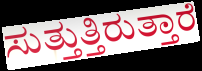
ಸುತ್ತುತ್ತಿರುತ್ತಾರೆ